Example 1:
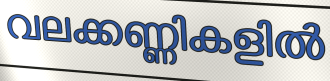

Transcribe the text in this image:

വലക്കണ്ണികളിൽ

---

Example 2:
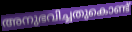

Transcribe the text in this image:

അനുഭവിച്ചതുകൊണ്ട്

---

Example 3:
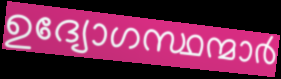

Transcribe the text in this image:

ഉദ്യോഗസ്ഥന്മാർ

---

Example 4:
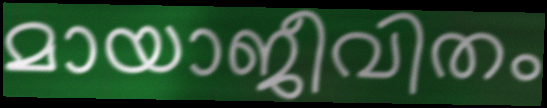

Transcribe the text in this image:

മായാജീവിതം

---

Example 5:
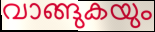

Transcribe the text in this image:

വാങ്ങുകയും